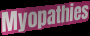
Myopathies